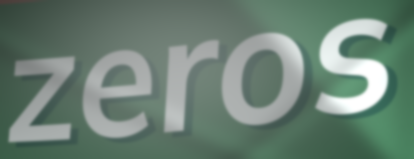
zeros